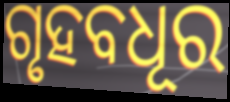
ଗୃହବଧୂର